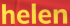
helen